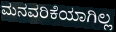
ಮನವರಿಕೆಯಾಗಿಲ್ಲ